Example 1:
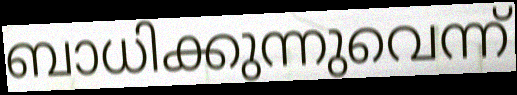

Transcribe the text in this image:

ബാധിക്കുന്നുവെന്ന്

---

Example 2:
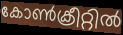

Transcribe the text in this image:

കോൺക്രീറ്റിൽ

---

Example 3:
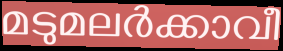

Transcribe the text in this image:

മടുമലർക്കാവീ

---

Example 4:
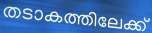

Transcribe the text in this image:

തടാകത്തിലേക്ക്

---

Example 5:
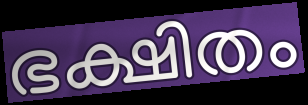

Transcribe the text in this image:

ഭക്ഷിതം